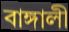
বাঙ্গালী